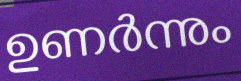
ഉണർന്നും